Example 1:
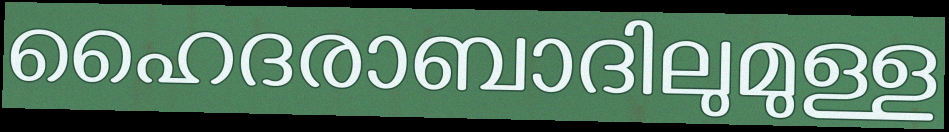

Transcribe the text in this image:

ഹൈദരാബാദിലുമുള്ള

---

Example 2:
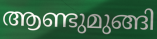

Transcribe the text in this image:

ആണ്ടുമുങ്ങി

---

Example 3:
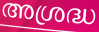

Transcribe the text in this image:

അശ്രദ്ധ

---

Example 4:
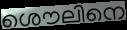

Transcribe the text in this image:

ശൌലിനെ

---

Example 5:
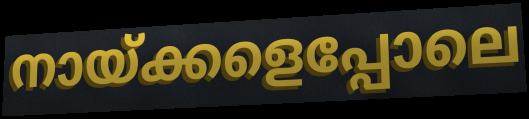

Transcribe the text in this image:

നായ്ക്കളെപ്പോലെ